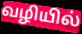
வழியில்